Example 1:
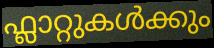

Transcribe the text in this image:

ഫ്ലാറ്റുകൾക്കും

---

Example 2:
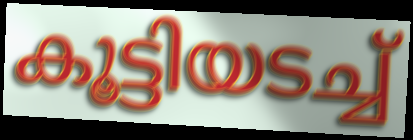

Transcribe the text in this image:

കൂട്ടിയടച്ച്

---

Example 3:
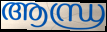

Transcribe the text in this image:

ആന്ധ്ര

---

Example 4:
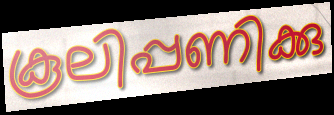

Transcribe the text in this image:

കൂലിപ്പണിക്കു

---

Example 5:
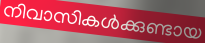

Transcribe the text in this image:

നിവാസികൾക്കുണ്ടായ